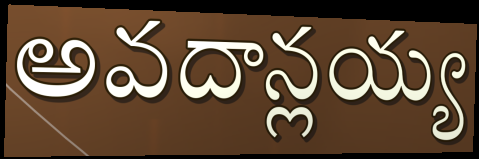
అవదాన్లయ్య